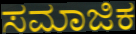
ಸಮಾಜಿಕ